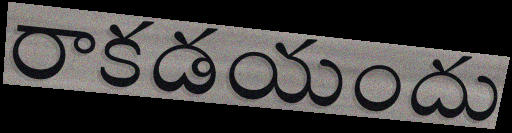
రాకడయందు